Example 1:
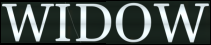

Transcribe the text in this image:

WIDOW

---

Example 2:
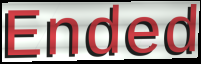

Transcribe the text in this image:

Ended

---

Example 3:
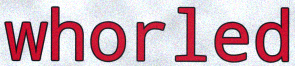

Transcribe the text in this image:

whorled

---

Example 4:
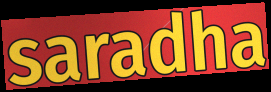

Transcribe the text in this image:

saradha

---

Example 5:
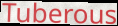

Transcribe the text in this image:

Tuberous